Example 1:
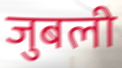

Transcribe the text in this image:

जुबली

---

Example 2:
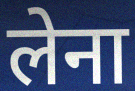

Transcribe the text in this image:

लेना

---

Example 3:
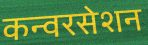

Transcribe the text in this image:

कन्वरसेशन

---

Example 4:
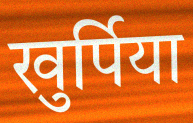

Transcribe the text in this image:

खुर्पिया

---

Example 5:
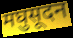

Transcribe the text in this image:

मघुसूदन